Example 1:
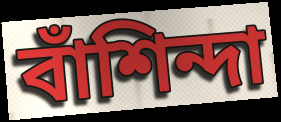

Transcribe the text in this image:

বাঁশিন্দা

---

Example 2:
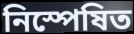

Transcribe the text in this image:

নিস্পেষিত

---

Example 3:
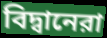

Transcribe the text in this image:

বিদ্বানেরা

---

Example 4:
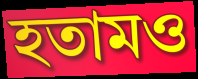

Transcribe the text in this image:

হতামও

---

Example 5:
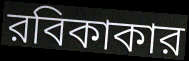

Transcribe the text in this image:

রবিকাকার